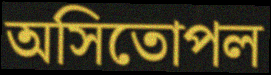
অসিতোপল